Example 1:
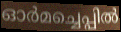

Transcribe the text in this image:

ഓർമച്ചെപ്പിൽ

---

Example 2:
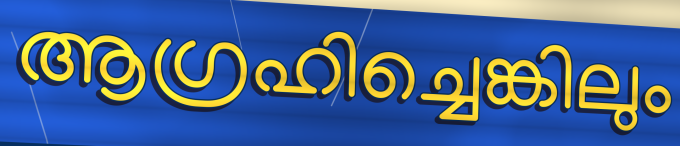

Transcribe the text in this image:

ആഗ്രഹിച്ചെങ്കിലും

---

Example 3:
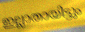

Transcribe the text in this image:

ഇല്ലാതായിട്ടും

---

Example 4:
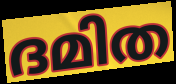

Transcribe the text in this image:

ദമിത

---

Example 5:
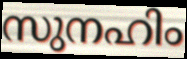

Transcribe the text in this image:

സുനഹിം